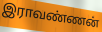
இராவண்ணன்